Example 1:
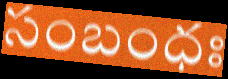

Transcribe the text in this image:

సంబంధః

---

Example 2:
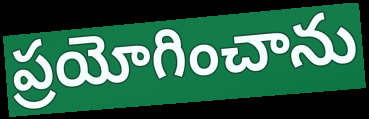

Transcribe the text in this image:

ప్రయోగించాను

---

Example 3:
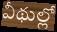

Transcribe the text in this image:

వీథుల్లో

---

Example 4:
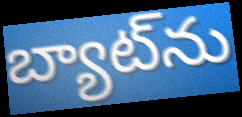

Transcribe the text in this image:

బ్యాట్‌ను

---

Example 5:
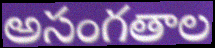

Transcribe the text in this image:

అసంగతాల